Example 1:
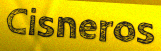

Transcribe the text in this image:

Cisneros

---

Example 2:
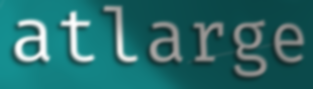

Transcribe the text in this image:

atlarge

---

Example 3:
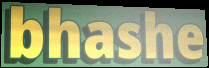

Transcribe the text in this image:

bhashe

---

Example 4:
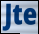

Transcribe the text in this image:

Jte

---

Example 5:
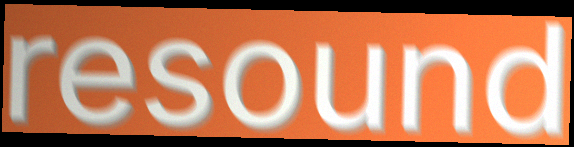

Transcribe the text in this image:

resound